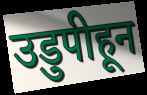
उडुपीहून